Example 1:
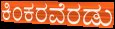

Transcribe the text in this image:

ಕಿಂಕರವೆರಡು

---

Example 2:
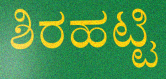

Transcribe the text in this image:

ಶಿರಹಟ್ಟಿ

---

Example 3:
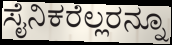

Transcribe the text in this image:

ಸೈನಿಕರೆಲ್ಲರನ್ನೂ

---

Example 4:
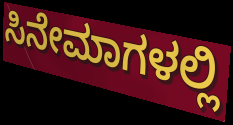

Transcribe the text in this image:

ಸಿನೇಮಾಗಳಲ್ಲಿ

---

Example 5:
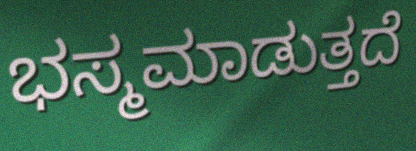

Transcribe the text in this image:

ಭಸ್ಮಮಾಡುತ್ತದೆ